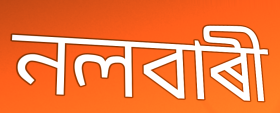
নলবাৰী